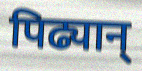
पिढ्यान्